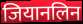
जियानलिन